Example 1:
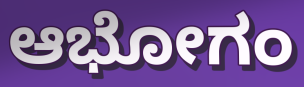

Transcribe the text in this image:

ಆಭೋಗಂ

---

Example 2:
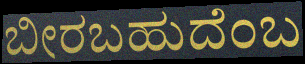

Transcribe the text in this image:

ಬೀರಬಹುದೆಂಬ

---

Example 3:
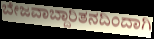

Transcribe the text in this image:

ಬೇಜವಾಬ್ದಾರಿತನದಿಂದಾಗಿ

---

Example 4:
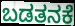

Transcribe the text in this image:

ಬಡತನಕೆ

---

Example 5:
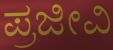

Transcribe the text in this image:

ಪ್ರಜೀವಿ